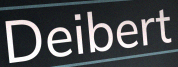
Deibert